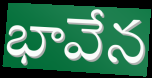
భావేన